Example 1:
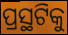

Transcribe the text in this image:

ପ୍ରସ୍ଥଟିକୁ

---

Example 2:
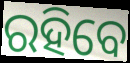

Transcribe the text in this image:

ରହିବେ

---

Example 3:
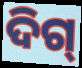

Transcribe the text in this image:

ଦିଗ୍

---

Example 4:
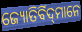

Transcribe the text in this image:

ଜ୍ୟୋତିର୍ବିଦ୍‌ମାନେ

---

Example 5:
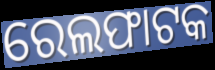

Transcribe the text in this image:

ରେଲଫାଟକ